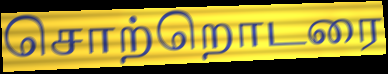
சொற்றொடரை